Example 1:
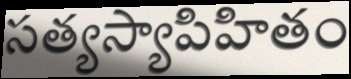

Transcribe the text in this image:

సత్యస్యాపిహితం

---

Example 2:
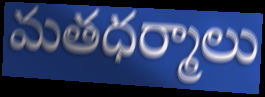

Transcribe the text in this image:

మతధర్మాలు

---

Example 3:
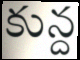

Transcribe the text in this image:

కున్ద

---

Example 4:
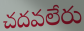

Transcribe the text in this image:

చదవలేరు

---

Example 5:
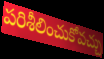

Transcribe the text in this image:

పరిశీలించుకోవచ్చు